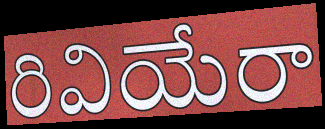
రివియేరా